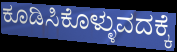
ಕೂಡಿಸಿಕೊಳ್ಳುವದಕ್ಕೆ